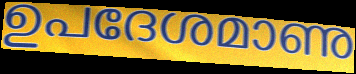
ഉപദേശമാണു